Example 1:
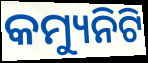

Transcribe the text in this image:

କମ୍ୟୁନିଟି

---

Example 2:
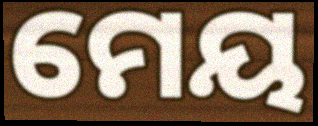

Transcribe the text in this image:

ମେୟ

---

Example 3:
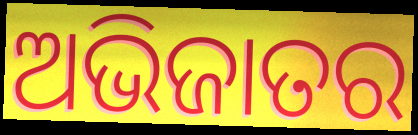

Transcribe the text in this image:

ଅଭିଜାତର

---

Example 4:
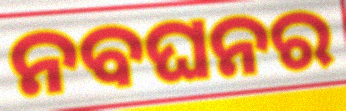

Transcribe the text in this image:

ନବଘନର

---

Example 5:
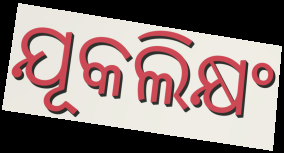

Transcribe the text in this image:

ଯୂକଲିକ୍ଷଂ